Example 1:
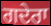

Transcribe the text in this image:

ਗਦੇਰਾ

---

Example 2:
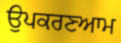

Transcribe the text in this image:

ਉਪਕਰਣਆਮ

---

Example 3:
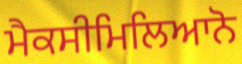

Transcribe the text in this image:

ਮੈਕਸੀਮਿਲਿਆਨੋ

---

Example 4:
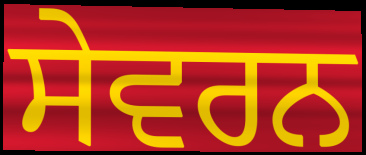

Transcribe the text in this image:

ਸੇਵਰਨ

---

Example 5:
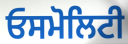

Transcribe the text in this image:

ਓਸਮੋਲਿਟੀ